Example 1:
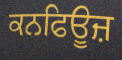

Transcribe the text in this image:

ਕਨਫਿਊਜ਼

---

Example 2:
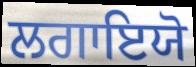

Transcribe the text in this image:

ਲਗਾਇਯੋ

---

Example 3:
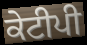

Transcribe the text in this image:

ਕੇਟੀਪੀ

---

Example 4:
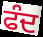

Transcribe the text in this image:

ਫੰਦ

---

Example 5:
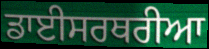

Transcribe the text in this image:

ਡਾਈਸਰਥਰੀਆ